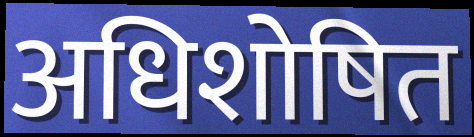
अधिशोषित